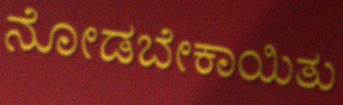
ನೋಡಬೇಕಾಯಿತು